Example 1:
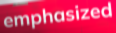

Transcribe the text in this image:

emphasized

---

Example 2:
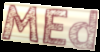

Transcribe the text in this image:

MEd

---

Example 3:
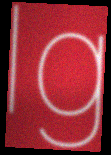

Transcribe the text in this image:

lg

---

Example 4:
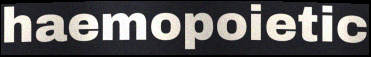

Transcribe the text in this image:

haemopoietic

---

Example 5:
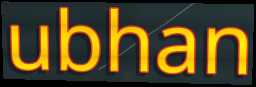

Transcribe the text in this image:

ubhan